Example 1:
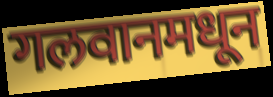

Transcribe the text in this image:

गलवानमधून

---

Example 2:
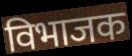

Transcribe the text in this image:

विभाजक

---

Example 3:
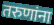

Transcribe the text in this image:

तरुणांना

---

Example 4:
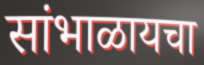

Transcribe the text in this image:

सांभाळायचा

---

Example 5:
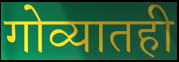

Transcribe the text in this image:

गोव्यातही